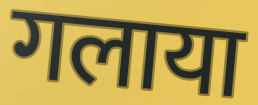
गलाया